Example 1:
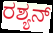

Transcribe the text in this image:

ರಶ್ಯನ್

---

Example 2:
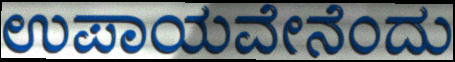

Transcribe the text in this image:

ಉಪಾಯವೇನೆಂದು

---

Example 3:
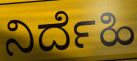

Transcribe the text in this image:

ನಿರ್ದೆಹಿ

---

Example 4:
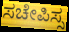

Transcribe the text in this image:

ಸಚೇಪಿಸ್ಸ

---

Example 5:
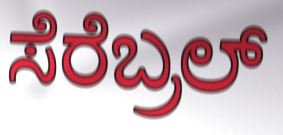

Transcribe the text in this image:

ಸೆರೆಬ್ರಲ್